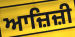
ਆਜ਼ਿਜ਼ੀ